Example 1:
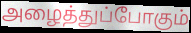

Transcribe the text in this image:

அழைத்துப்போகும்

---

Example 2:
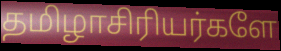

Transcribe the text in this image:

தமிழாசிரியர்களே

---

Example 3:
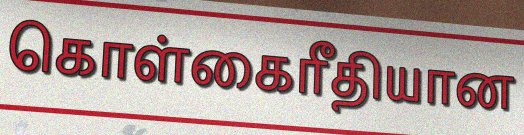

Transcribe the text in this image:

கொள்கைரீதியான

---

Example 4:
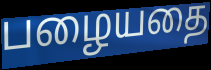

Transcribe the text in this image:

பழையதை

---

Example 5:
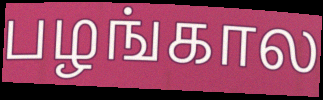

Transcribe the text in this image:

பழங்கால